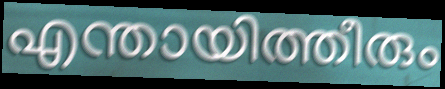
എന്തായിത്തീരും